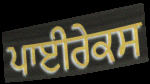
ਪਾਈਰੇਕਸ